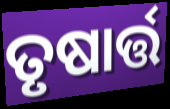
ତୃଷାର୍ତ୍ତ